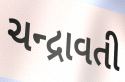
ચન્દ્રાવતી